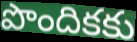
పొందికకు